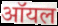
ऑयल